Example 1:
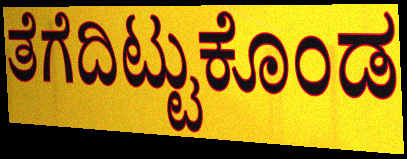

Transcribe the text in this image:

ತೆಗೆದಿಟ್ಟುಕೊಂಡ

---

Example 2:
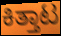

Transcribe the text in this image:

ಕಿತ್ತಾಟ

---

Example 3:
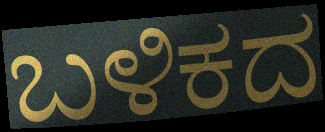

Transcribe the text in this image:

ಬಳಿಕದ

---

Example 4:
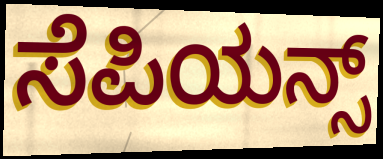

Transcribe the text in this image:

ಸೆಪಿಯನ್ಸ್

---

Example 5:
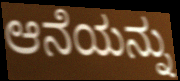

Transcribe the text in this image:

ಆನೆಯನ್ನು